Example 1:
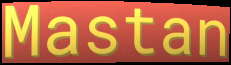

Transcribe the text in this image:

Mastan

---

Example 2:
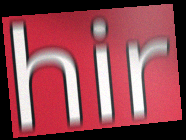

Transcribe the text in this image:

hir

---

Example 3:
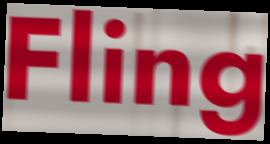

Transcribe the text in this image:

Fling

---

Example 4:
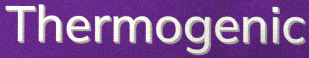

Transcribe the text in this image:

Thermogenic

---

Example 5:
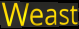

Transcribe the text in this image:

Weast